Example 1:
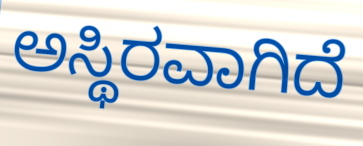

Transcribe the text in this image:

ಅಸ್ಥಿರವಾಗಿದೆ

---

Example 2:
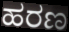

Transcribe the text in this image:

ಹರಣ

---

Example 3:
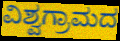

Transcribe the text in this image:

ವಿಶ್ವಗ್ರಾಮದ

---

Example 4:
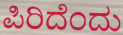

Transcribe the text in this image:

ಪಿರಿದೆಂದು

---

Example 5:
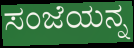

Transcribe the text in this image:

ಸಂಜೆಯನ್ನ